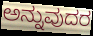
ಅನ್ನುವುದರ